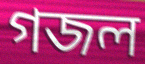
গজল